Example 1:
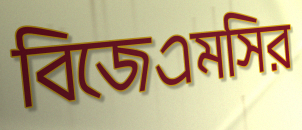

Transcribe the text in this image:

বিজেএমসির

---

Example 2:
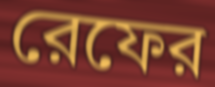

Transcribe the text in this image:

রেফের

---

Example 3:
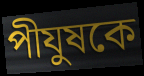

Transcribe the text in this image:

পীযুষকে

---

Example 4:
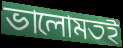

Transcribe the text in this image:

ভালোমতই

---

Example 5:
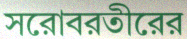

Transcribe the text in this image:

সরোবরতীরের